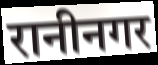
रानीनगर